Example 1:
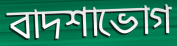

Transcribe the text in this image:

বাদশাভোগ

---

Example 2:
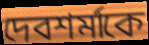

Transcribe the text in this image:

দেবশর্মাকে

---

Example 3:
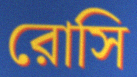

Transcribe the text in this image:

রোসি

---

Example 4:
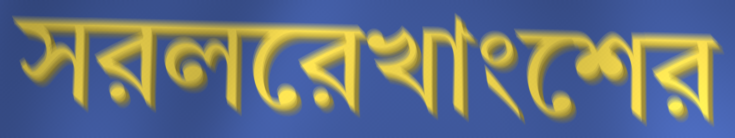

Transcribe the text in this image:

সরলরেখাংশের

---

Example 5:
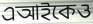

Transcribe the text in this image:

এআইকেও